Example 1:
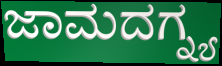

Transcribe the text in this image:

ಜಾಮದಗ್ನ್ಯ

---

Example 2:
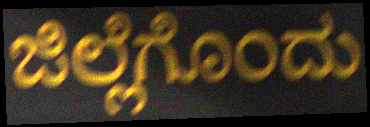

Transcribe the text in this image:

ಜಿಲ್ಲೆಗೊಂದು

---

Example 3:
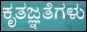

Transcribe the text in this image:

ಕೃತಜ್ಞತೆಗಳು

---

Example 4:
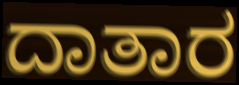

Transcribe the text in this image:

ದಾತಾರ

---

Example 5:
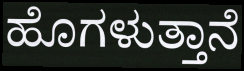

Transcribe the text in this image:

ಹೊಗಳುತ್ತಾನೆ